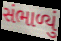
સંભાળ્યું